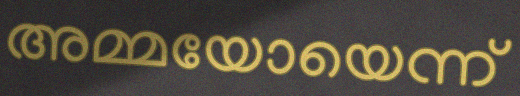
അമ്മയോയെന്ന്